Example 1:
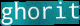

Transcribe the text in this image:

ghorit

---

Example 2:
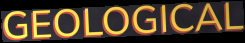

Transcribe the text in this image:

GEOLOGICAL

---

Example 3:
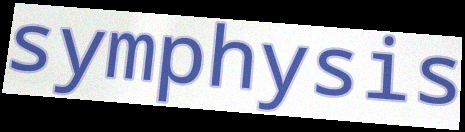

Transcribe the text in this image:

symphysis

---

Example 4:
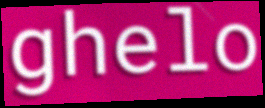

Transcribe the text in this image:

ghelo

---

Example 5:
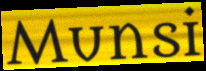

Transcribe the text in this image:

Munsi